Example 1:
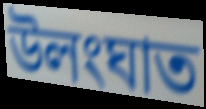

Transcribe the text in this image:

উলংঘাত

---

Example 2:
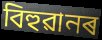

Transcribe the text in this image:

বিহুৱানৰ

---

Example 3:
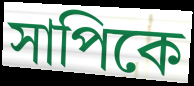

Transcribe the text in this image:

সাপিকে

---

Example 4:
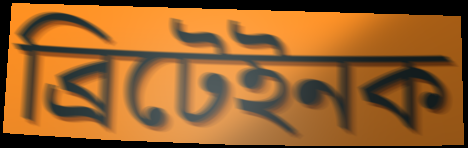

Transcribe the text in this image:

ব্ৰিটেইনক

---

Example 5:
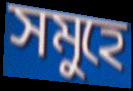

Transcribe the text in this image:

সমুহে